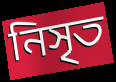
নিসৃত